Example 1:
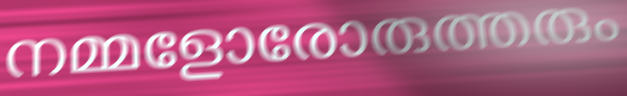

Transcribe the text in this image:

നമ്മളോരോരുത്തരും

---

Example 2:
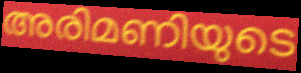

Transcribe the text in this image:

അരിമണിയുടെ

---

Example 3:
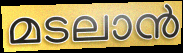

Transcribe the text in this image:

മടലാൻ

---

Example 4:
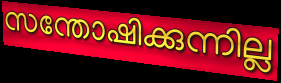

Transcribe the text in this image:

സന്തോഷിക്കുന്നില്ല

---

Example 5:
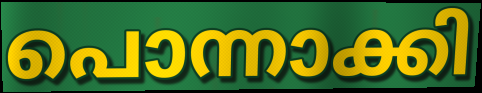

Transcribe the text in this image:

പൊന്നാക്കി